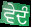
ਵੇਦੰ